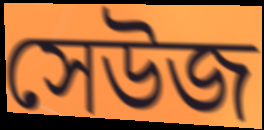
সেউজ